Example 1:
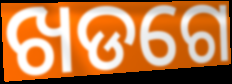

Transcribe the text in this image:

ଖଡଗେ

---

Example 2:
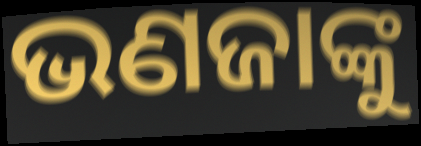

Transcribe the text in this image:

ଭଣଜାଙ୍କୁ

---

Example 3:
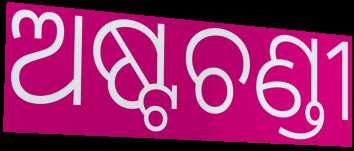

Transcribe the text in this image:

ଅଷ୍ଟଚଣ୍ଡୀ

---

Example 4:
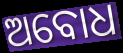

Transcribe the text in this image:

ଅବୋଧ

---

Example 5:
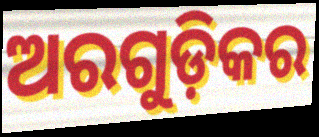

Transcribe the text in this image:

ଅରଗୁଡ଼ିକର